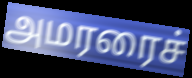
அமரரைச்